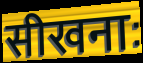
सीखनाः